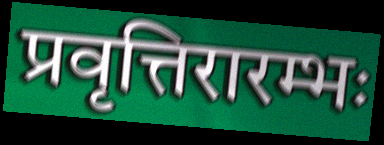
प्रवृत्तिरारम्भः